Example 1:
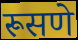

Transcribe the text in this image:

रूसणे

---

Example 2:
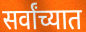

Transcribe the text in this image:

सर्वांच्यात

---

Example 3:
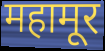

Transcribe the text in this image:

महामूर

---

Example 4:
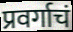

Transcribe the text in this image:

प्रवर्गाचं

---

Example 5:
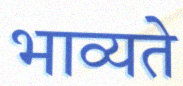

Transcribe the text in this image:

भाव्यते